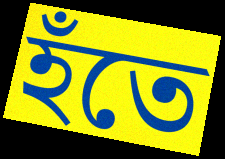
হঁতে